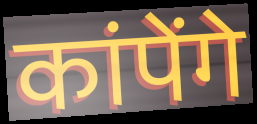
कांपेंगे